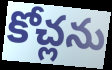
కోచ్లను